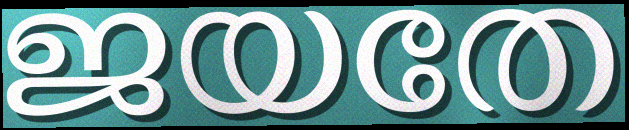
ജയതേ